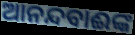
ଆନନ୍ଦବାଈଙ୍କ